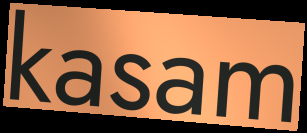
kasam